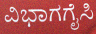
ವಿಭಾಗಗೈಸಿ